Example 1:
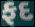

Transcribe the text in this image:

ફદ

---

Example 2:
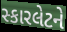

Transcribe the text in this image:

સ્કારલેટને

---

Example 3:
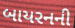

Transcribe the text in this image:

બાયરનની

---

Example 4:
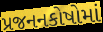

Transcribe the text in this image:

પ્રજનનકોષોમાં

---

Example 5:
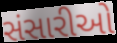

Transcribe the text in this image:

સંસારીઓ